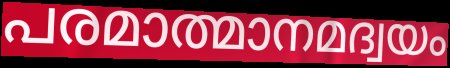
പരമാത്മാനമദ്വയം